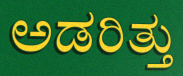
ಅಡರಿತ್ತು